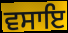
ਵਸਾਇ